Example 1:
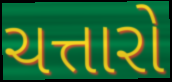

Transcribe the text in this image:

ચત્તારો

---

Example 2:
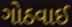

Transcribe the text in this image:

ગોઠવાઈ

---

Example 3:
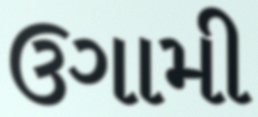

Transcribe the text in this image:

ઉગામી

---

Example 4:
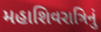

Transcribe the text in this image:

મહાશિવરાત્રિનું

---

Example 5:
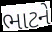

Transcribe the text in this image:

ભાટને